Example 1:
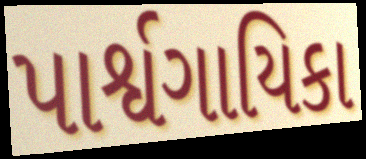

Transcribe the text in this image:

પાર્શ્વગાયિકા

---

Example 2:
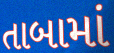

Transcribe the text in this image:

તાબામાં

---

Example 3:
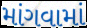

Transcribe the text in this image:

માંગવામાં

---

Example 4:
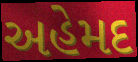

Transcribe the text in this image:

અહેમદ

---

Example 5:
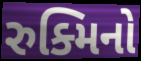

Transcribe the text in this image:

રુક્મિનો